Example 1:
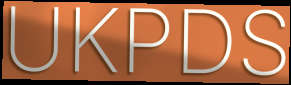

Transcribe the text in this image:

UKPDS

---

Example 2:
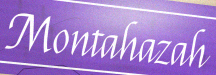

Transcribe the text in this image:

Montahazah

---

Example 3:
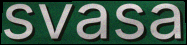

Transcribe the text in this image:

svasa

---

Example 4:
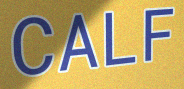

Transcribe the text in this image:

CALF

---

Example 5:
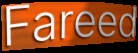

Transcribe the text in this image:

Fareed